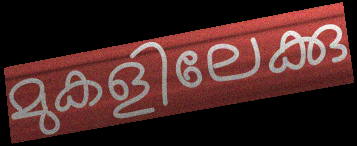
മുകളിലേക്കു